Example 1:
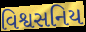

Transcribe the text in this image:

વિશ્વસનિય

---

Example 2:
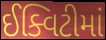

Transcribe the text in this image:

ઈક્વિટીમાં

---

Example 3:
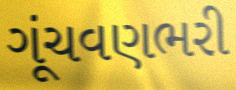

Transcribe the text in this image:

ગૂંચવણભરી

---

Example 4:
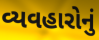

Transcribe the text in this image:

વ્યવહારોનું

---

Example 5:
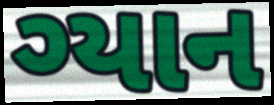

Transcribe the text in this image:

ગ્યાન